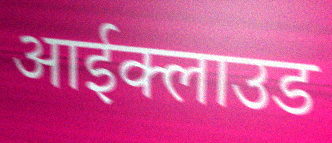
आईक्लाउड